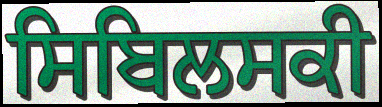
ਸਿਬਿਲਸਕੀ